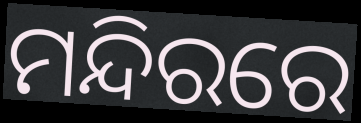
ମନ୍ଦିରରେ